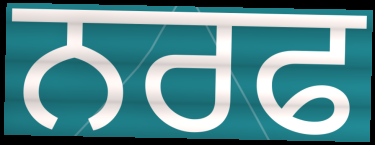
ਨਰਫ